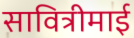
सावित्रीमाई